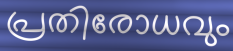
പ്രതിരോധവും